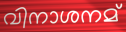
വിനാശനമ്